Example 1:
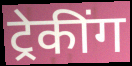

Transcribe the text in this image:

ट्रेकींग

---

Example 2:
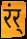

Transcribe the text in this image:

रंर्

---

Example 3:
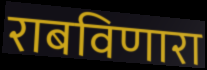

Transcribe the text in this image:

राबविणारा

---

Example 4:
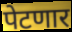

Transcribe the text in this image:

पेटणार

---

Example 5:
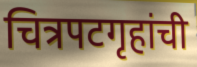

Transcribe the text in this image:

चित्रपटगृहांची